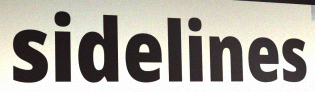
sidelines